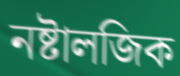
নষ্টালজিক